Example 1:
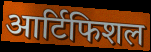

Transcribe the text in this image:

आर्टिफिशल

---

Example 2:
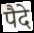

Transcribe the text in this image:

पैदे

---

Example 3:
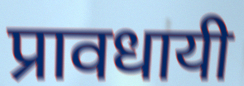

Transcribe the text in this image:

प्रावधायी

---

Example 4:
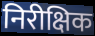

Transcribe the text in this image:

निरीक्षिक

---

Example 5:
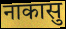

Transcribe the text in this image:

नाकासु